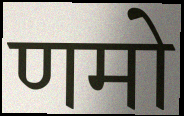
णमो